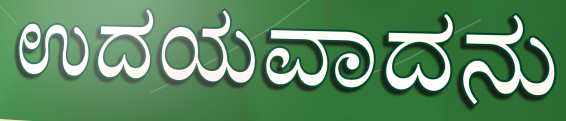
ಉದಯವಾದನು